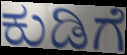
ಕುಡಿಗೆ